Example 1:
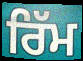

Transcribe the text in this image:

ਰਿੱਮ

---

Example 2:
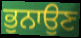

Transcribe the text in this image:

ਭੁਨਾਉਣ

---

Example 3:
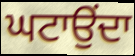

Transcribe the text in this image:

ਘਟਾਉਂਦਾ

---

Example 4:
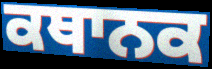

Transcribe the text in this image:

ਕਥਾਨਕ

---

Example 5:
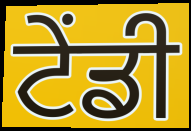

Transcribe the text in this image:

ਟੇਂਡੀ